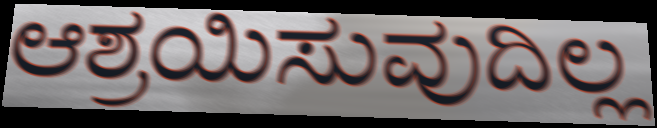
ಆಶ್ರಯಿಸುವುದಿಲ್ಲ